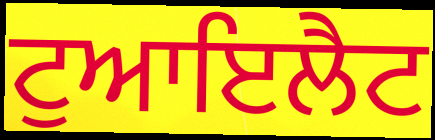
ਟੁਆਇਲੈਟ